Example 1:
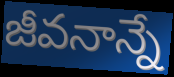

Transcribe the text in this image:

జీవనాన్నే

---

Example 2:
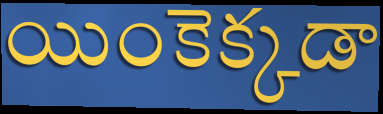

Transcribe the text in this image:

యింకెక్కడా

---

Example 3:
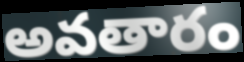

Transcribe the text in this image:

అవతారం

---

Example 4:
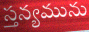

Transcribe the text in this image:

స్తన్యమును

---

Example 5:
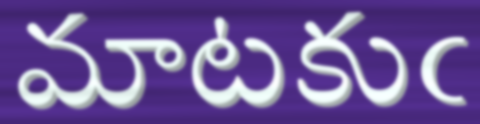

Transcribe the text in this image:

మాటకుఁ